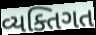
વ્યક્તિગત